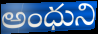
అంధుని